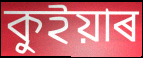
কুইয়াৰ